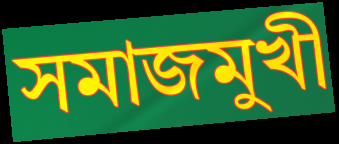
সমাজমুখী